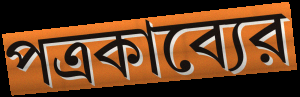
পত্রকাব্যের